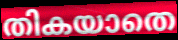
തികയാതെ